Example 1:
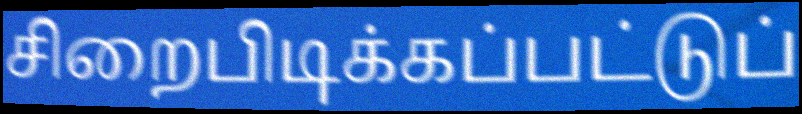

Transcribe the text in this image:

சிறைபிடிக்கப்பட்டுப்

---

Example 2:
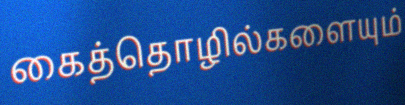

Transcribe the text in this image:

கைத்தொழில்களையும்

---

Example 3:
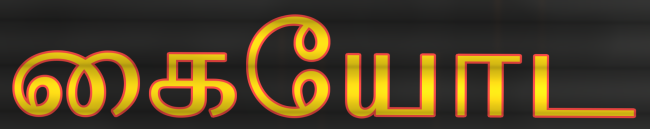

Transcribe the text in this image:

கையோட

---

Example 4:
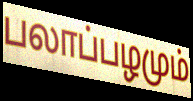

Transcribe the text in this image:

பலாப்பழமும்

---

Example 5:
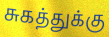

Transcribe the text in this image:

சுகத்துக்கு